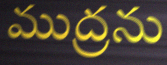
ముద్రను